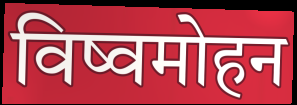
विष्वमोहन